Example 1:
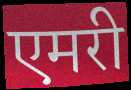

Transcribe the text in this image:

एमरी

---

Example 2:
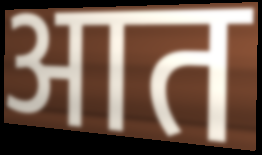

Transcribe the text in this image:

आत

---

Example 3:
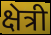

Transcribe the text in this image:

क्षेत्री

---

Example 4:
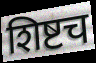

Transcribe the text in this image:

शिष्टच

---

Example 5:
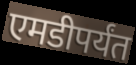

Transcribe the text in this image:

एमडीपर्यंत